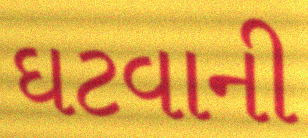
ઘટવાની